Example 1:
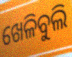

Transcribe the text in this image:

ଖେଳିବୁଲି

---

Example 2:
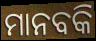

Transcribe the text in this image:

ମାନବକି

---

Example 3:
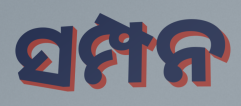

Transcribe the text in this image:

ସମ୍ପନ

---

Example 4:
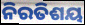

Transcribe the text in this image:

ନିରତିଶୟ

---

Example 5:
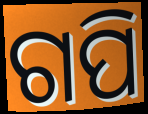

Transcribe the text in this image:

ଗପି